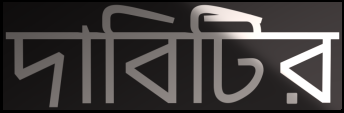
দাবিটির